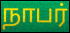
நாபர்